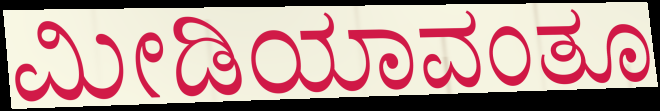
ಮೀಡಿಯಾವಂತೂ